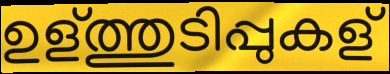
ഉള്ത്തുടിപ്പുകള്